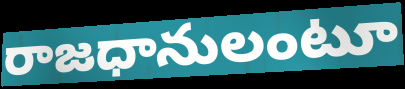
రాజధానులంటూ